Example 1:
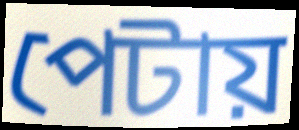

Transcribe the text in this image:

পেটায়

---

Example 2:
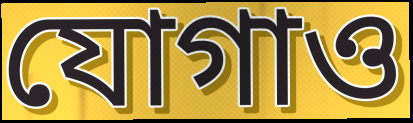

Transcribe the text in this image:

যোগাও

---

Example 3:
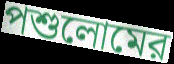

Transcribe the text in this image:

পশুলোমের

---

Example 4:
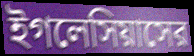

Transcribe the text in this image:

ইগলেসিয়াসের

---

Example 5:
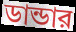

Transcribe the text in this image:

ডান্ডার